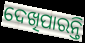
ଦେଖିପାରନ୍ତି